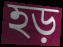
হড়